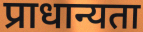
प्राधान्यता